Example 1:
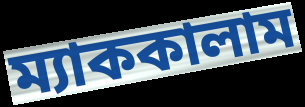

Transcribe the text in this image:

ম্যাককালাম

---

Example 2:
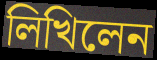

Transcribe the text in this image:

লিখিলেন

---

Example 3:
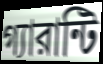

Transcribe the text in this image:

গ্যারান্টি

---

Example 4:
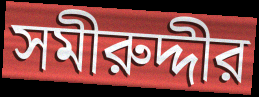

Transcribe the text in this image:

সমীরুদ্দীর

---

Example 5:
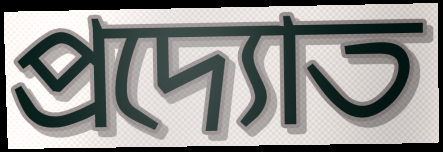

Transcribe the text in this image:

প্রদ্যোত